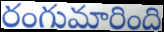
రంగుమారింది